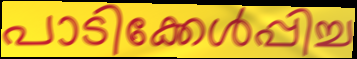
പാടിക്കേൾപ്പിച്ച